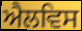
ਐਲਵਿਸ